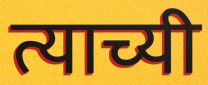
त्याच्यी